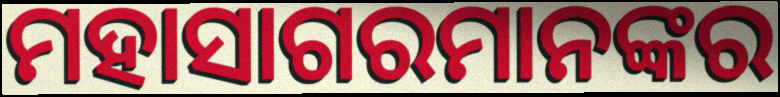
ମହାସାଗରମାନଙ୍କର